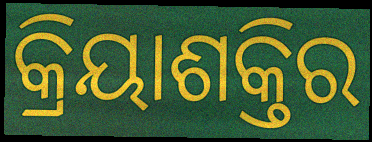
କ୍ରିୟାଶକ୍ତିର